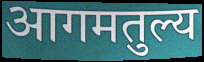
आगमतुल्य